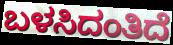
ಬಳಸಿದಂತಿದೆ